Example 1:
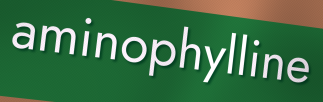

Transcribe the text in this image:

aminophylline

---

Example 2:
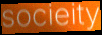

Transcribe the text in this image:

socieity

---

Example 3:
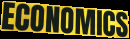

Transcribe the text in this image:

ECONOMICS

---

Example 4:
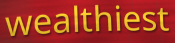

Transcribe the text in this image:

wealthiest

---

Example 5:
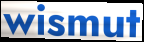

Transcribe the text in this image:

wismut